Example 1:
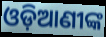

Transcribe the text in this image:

ଓଡ଼ିଆଣୀଙ୍କ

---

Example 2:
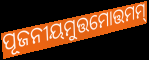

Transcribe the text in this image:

ପୂଜନୀୟମୁତ୍ତମୋତ୍ତମମ୍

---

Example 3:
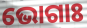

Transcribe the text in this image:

ଭୋଗାଃ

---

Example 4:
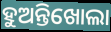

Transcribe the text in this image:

ହୁଅନ୍ତିଖୋଲା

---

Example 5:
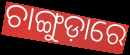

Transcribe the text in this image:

ଚାଙ୍ଗୁଡ଼ାରେ